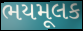
ભયમૂલક